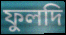
ফুলদি